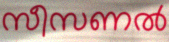
സീസണൽ